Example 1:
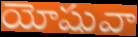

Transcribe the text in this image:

యోషువా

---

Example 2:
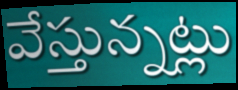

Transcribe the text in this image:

వేస్తున్నట్లు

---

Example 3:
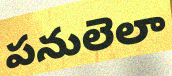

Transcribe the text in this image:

పనులెలా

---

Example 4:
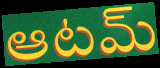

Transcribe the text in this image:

ఆటమ్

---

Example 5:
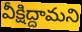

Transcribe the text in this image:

వీక్షిద్దామని